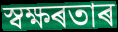
স্বক্ষৰতাৰ